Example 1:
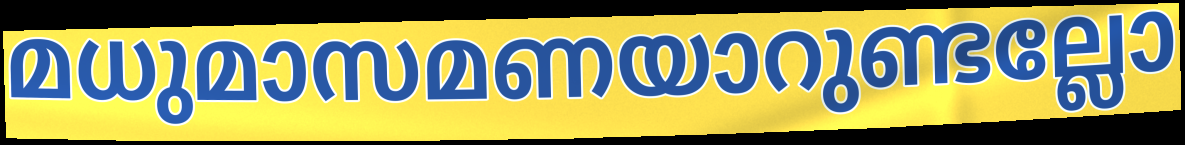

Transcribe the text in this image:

മധുമാസമണയാറുണ്ടല്ലോ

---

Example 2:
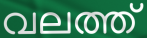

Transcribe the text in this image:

വലത്ത്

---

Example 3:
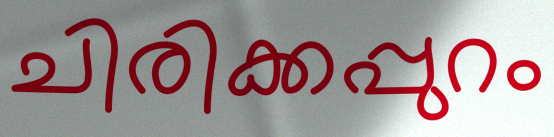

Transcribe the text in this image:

ചിരിക്കപ്പുറം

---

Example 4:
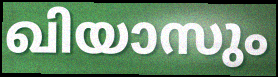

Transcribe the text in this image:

ഖിയാസും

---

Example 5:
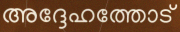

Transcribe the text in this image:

അദ്ദേഹത്തോട്